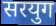
सरयुग